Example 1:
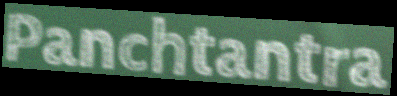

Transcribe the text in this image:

Panchtantra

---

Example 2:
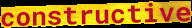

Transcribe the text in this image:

constructive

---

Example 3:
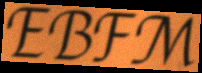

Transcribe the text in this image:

EBFM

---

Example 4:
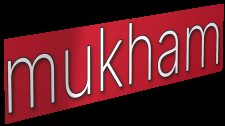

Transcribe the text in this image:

mukham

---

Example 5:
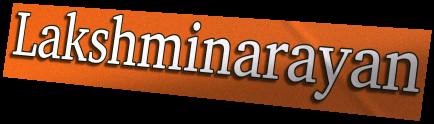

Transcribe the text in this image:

Lakshminarayan